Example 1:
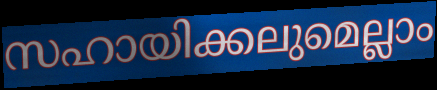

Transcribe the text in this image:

സഹായിക്കലുമെല്ലാം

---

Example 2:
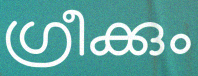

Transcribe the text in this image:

ഗ്രീക്കും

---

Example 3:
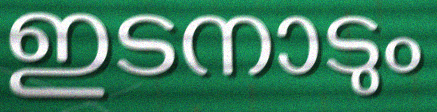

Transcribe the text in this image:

ഇടനാടും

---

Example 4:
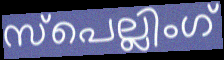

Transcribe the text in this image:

സ്പെല്ലിംഗ്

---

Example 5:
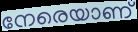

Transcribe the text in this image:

നേരെയാണ്